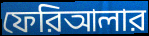
ফেরিআলার